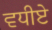
ਵਧੀਏ